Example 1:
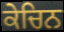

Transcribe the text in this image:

ਕੇਚਿਨ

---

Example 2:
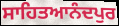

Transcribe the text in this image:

ਸਾਹਿਤਆਨੰਦਪੁਰ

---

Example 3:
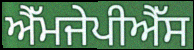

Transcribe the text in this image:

ਐੱਮਜੇਪੀਐੱਸ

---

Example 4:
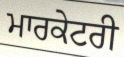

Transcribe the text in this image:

ਮਾਰਕੇਟਰੀ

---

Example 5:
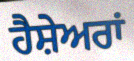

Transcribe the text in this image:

ਹੈਸ਼ੇਅਰਾਂ